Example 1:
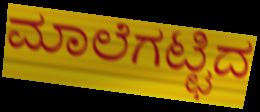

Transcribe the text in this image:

ಮಾಲೆಗಟ್ಟಿದ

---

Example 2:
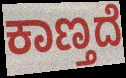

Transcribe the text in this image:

ಕಾಣ್ತದೆ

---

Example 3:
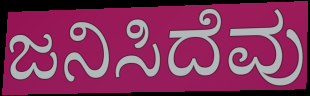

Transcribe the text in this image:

ಜನಿಸಿದೆವು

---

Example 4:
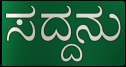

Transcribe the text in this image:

ಸದ್ದನು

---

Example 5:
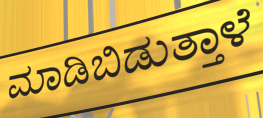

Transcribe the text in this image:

ಮಾಡಿಬಿಡುತ್ತಾಳೆ